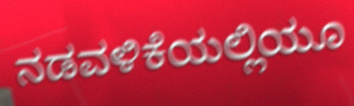
ನಡವಳಿಕೆಯಲ್ಲಿಯೂ